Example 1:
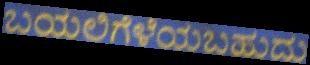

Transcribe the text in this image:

ಬಯಲಿಗೆಳೆಯಬಹುದು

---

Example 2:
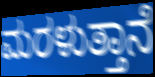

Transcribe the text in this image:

ಮರಳುತ್ತಾನೆ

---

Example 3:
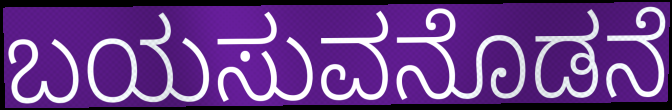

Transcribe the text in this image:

ಬಯಸುವನೊಡನೆ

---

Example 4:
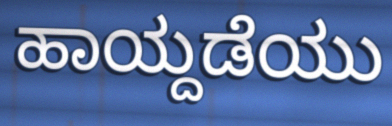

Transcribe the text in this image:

ಹಾಯ್ದಡೆಯು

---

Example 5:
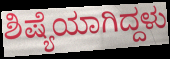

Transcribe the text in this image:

ಶಿಷ್ಯೆಯಾಗಿದ್ದಳು